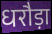
धरौड़ा